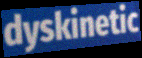
dyskinetic